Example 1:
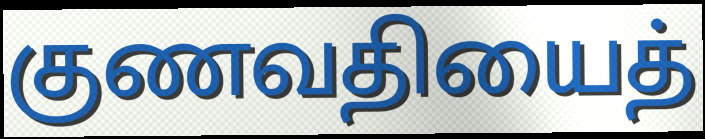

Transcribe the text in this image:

குணவதியைத்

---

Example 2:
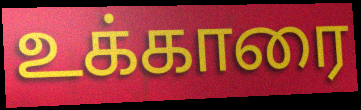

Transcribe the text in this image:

உக்காரை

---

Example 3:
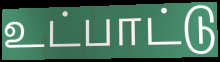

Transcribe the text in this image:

உட்பாட்டு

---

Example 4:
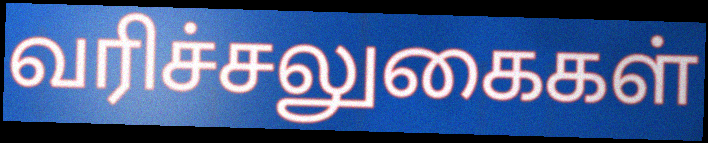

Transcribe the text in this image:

வரிச்சலுகைகள்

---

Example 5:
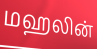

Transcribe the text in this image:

மஹலின்